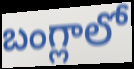
బంగ్లాలో